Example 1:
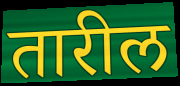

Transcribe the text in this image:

तारील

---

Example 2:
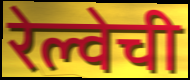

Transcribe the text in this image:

रेल्वेची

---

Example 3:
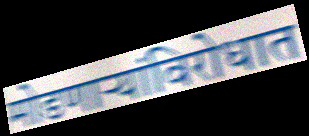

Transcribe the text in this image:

मोडणाऱ्यांविरोधात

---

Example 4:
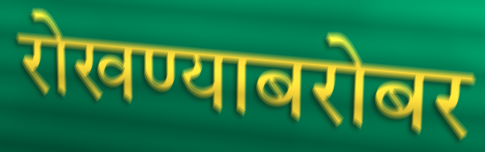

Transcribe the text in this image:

रोखण्याबरोबर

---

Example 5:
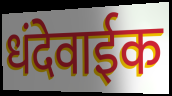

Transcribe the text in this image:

धंदेवाईक